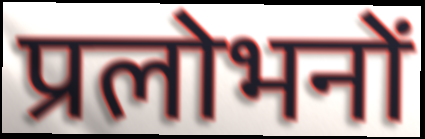
प्रलोभनों